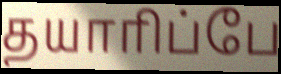
தயாரிப்பே